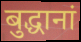
बुद्धानां